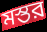
মস্তর